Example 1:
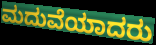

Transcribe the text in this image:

ಮದುವೆಯಾದರು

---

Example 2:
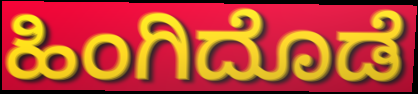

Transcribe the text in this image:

ಹಿಂಗಿದೊಡೆ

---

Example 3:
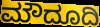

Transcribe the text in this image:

ಮೌದೂದಿ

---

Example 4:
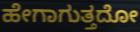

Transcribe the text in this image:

ಹೇಗಾಗುತ್ತದೋ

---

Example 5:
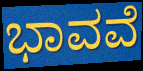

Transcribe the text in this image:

ಭಾವವೆ